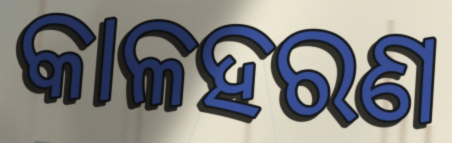
କାଳହରଣ